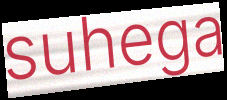
suhega